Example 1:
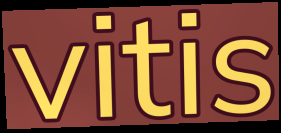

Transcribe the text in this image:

vitis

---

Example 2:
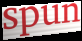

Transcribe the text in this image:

spun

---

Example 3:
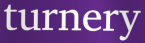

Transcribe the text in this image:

turnery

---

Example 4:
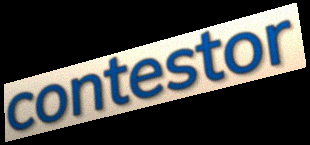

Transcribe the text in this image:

contestor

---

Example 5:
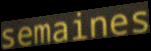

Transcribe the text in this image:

semaines